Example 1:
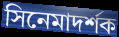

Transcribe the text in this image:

সিনেমাদর্শক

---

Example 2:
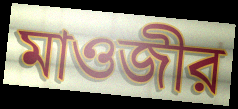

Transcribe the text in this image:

মাওজীর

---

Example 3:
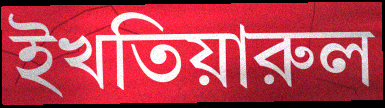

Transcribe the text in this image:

ইখতিয়ারুল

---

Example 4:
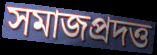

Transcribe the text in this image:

সমাজপ্রদত্ত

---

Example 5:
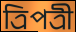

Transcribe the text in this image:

ত্রিপত্রী